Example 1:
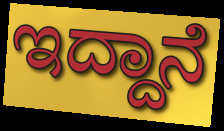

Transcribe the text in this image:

ಇದ್ದಾನೆ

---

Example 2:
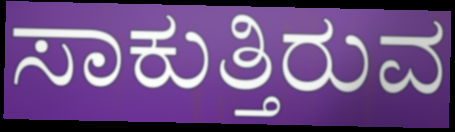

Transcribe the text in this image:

ಸಾಕುತ್ತಿರುವ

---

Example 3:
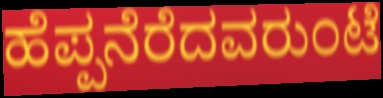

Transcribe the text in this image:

ಹೆಪ್ಪನೆರೆದವರುಂಟೆ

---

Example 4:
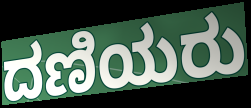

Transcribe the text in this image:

ದಣಿಯರು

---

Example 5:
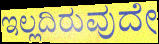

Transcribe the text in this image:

ಇಲ್ಲದಿರುವುದೇ